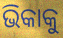
ଭିକାକୁ